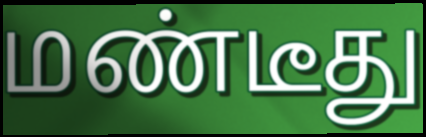
மண்டீது